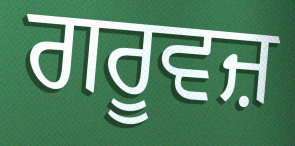
ਗਰੂਵਜ਼